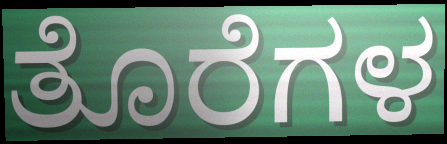
ತೊರೆಗಳ